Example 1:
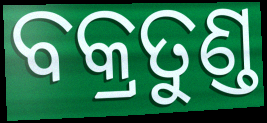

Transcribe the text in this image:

ବକ୍ରତୁଣ୍ଡ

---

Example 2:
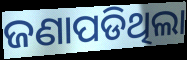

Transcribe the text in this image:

ଜଣାପଡିଥିଲା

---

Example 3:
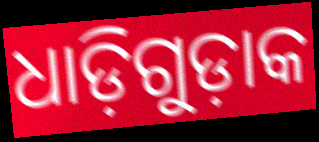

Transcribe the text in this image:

ଧାଡ଼ିଗୁଡ଼ାକ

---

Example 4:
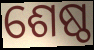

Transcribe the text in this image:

ଶେଷ୍ଠ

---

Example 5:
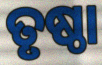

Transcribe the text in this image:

ତୃଷ୍ଠା